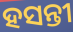
ହସନ୍ତୀ